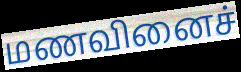
மணவினைச்